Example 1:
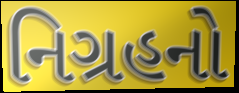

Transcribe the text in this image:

નિગ્રહનો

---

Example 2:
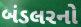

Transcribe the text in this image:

બંડલરનો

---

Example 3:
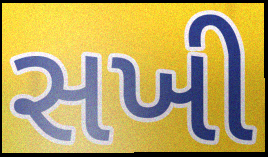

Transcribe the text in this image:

સખી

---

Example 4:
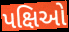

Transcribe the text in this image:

પક્ષિઓ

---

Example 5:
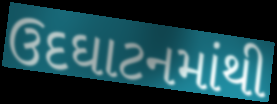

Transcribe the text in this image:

ઉદઘાટનમાંથી